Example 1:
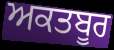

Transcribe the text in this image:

ਅਕਤਬੂਰ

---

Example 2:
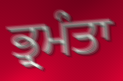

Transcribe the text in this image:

ਭ੍ਰਮੰਤਾ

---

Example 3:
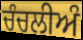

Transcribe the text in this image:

ਚੰਚਲੀਅੰ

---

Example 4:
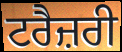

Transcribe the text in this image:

ਟਰੈਜ਼ਰੀ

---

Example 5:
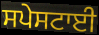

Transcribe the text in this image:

ਸਪੇਸਟਾਈ